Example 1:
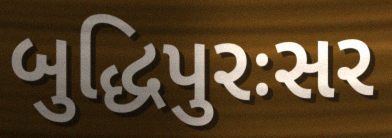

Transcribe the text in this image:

બુદ્ધિપુરઃસર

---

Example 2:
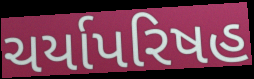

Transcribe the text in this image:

ચર્યાપરિષહ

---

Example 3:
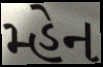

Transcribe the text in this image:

મ્હેન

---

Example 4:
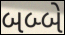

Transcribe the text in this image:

બબ્બે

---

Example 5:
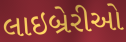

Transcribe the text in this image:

લાઇબ્રેરીઓ